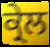
ਕ੍ਰੇਲ